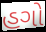
હગો